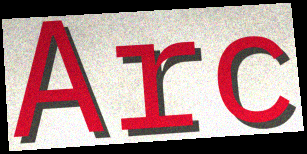
Arc